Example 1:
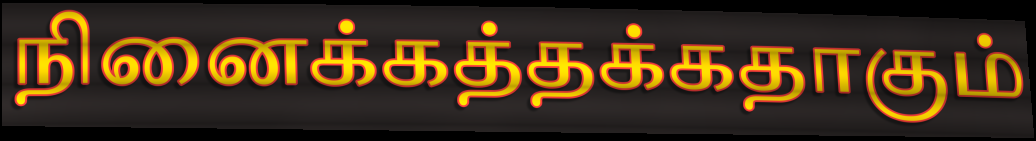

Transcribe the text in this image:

நினைக்கத்தக்கதாகும்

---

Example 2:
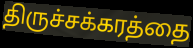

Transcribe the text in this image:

திருச்சக்கரத்தை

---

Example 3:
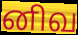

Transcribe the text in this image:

னிவ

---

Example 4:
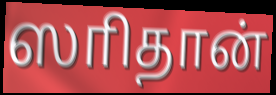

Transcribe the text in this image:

ஸரிதான்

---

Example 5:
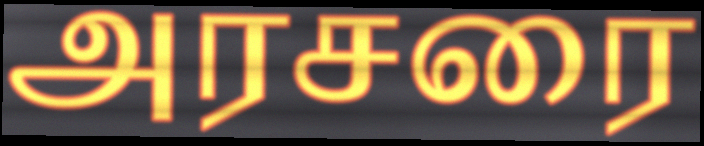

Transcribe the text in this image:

அரசரை